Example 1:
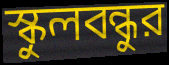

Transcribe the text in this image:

স্কুলবন্ধুর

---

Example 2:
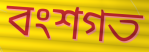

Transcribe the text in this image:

বংশগত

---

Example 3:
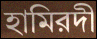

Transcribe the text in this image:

হামিরদী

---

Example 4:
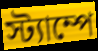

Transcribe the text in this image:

স্ট্যাম্পে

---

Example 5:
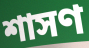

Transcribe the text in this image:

শাসণ